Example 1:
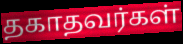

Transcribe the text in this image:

தகாதவர்கள்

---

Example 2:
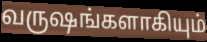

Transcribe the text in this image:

வருஷங்களாகியும்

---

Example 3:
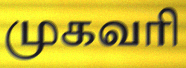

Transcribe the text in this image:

முகவரி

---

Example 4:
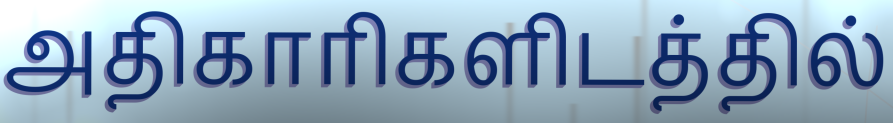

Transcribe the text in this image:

அதிகாரிகளிடத்தில்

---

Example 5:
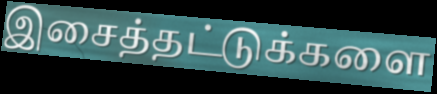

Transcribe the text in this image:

இசைத்தட்டுக்களை